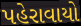
પહેરાવાયો